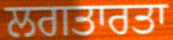
ਲਗਤਾਰਤਾ